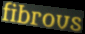
fibrous